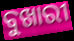
ବୁଖାରୀ